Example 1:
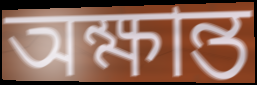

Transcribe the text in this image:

অক্ষান্ত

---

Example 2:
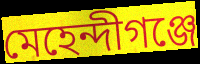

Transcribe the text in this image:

মেহেন্দীগঞ্জে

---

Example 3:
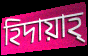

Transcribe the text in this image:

হিদায়াহ্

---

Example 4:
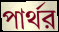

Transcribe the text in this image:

পার্থর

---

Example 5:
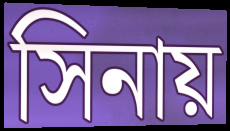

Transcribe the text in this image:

সিনায়